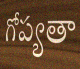
గోప్యతా